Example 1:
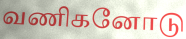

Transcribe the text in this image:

வணிகனோடு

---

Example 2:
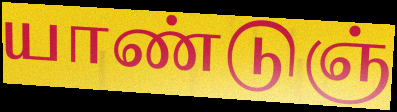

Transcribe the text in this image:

யாண்டுஞ்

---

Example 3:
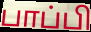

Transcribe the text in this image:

பாப்பி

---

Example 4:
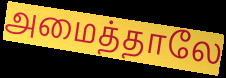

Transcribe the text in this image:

அமைத்தாலே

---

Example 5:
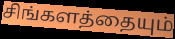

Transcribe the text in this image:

சிங்களத்தையும்